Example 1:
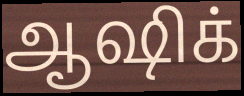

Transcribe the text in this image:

ஆஷிக்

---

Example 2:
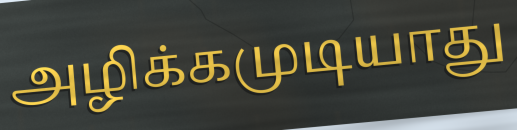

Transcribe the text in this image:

அழிக்கமுடியாது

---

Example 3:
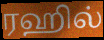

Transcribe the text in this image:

ரஹில்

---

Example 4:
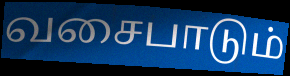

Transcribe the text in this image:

வசைபாடும்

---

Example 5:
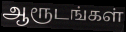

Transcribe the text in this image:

ஆரூடங்கள்